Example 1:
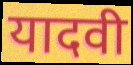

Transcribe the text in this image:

यादवी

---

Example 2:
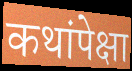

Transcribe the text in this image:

कथांपेक्षा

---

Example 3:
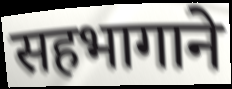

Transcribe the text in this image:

सहभागाने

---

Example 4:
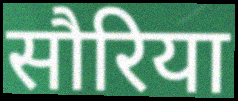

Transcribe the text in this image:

सौरिया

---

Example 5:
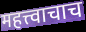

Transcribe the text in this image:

महत्त्वाचाच